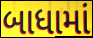
બાધામાં